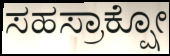
ಸಹಸ್ರಾಕ್ಷೋ